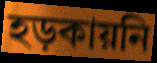
হড়কায়নি